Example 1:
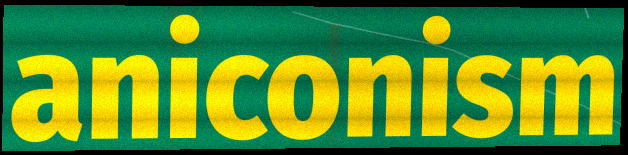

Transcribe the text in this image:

aniconism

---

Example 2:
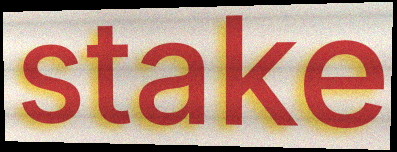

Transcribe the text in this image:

stake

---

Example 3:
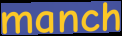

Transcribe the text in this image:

manch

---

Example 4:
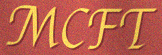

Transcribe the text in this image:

MCFT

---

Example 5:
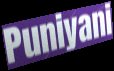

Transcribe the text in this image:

Puniyani